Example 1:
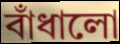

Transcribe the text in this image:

বাঁধালো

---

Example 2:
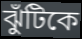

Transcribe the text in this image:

ঝুঁটিকে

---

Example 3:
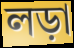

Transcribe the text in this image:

লড়া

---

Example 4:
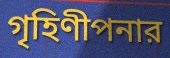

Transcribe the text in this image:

গৃহিণীপনার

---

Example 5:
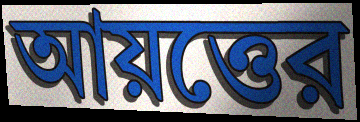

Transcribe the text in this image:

আয়ত্তের